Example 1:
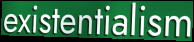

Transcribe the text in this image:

existentialism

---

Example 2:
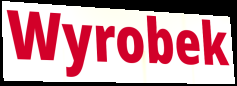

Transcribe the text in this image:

Wyrobek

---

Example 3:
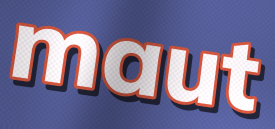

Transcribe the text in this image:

maut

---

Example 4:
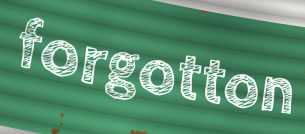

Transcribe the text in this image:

forgotton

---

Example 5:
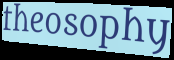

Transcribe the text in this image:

theosophy